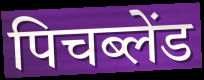
पिचब्लेंड